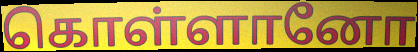
கொள்ளானோ